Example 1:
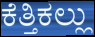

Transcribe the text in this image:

ಕೆತ್ತಿಕಲ್ಲು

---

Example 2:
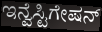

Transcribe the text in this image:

ಇನ್ವೆಸ್ಟಿಗೇಷನ್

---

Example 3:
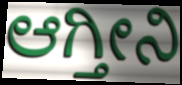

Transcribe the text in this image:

ಆಗ್ತೀನಿ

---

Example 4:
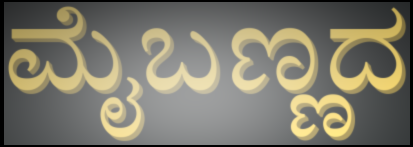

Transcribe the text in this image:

ಮೈಬಣ್ಣದ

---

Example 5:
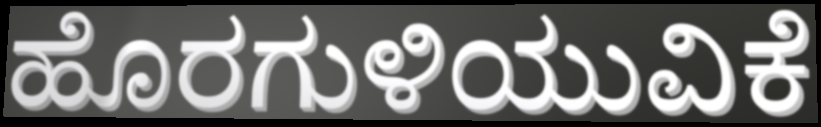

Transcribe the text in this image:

ಹೊರಗುಳಿಯುವಿಕೆ